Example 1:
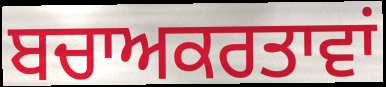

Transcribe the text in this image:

ਬਚਾਅਕਰਤਾਵਾਂ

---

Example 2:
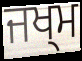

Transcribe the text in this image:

ਜਖ੍ਮ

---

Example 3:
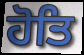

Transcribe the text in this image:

ਹੋਤਿ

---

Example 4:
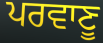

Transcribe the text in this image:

ਪਰਵਾਣੂ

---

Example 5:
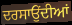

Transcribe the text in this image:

ਦਰਸਾਉਂਦੀਆਂ